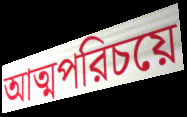
আত্মপরিচয়ে